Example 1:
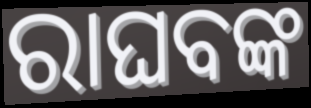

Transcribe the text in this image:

ରାଘବଙ୍କ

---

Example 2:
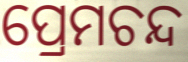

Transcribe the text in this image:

ପ୍ରେମଚନ୍ଦ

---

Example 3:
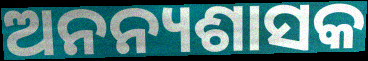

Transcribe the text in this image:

ଅନନ୍ୟଶାସକ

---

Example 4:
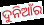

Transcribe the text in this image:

ଦୁନିଆଁର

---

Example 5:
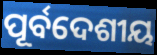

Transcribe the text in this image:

ପୂର୍ବଦେଶୀୟ